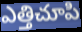
ఎత్తిచూపి